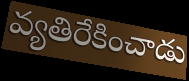
వ్యతిరేకించాడు